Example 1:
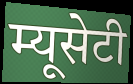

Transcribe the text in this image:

म्यूसेटी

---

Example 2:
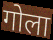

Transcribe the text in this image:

गोला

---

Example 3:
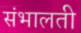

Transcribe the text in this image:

संभालती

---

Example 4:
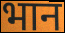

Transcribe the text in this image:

भान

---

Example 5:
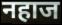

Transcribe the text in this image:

नहाज